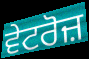
ਵੇਟਰੋਜ਼